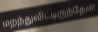
மறந்துவிட்டிருந்தேன்